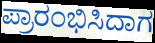
ಪ್ರಾರಂಭಿಸಿದಾಗ